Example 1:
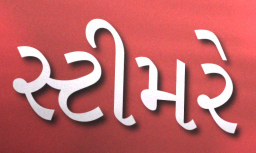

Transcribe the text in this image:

સ્ટીમરે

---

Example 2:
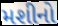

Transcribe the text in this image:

મશીનો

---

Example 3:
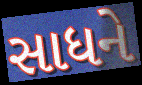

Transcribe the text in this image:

સાધને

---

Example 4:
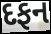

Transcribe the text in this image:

દફન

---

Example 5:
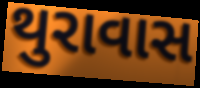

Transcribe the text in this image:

થુરાવાસ